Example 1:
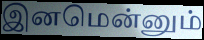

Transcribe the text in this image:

இனமென்னும்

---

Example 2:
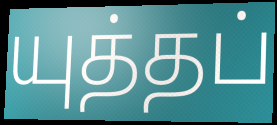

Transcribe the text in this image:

யுத்தப்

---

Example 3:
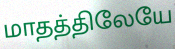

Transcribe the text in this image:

மாதத்திலேயே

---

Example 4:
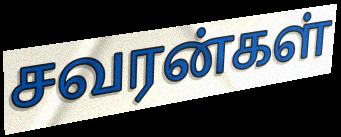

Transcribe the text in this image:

சவரன்கள்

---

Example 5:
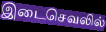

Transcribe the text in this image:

இடைசெவலில்